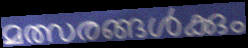
മത്സരങ്ങൾക്കും